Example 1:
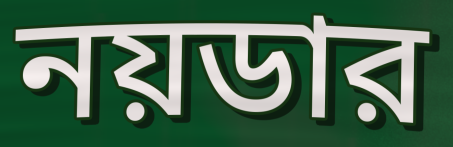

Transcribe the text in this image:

নয়ডার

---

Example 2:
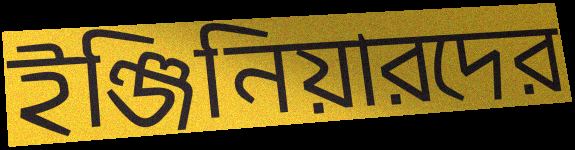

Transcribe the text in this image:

ইঞ্জিনিয়ারদের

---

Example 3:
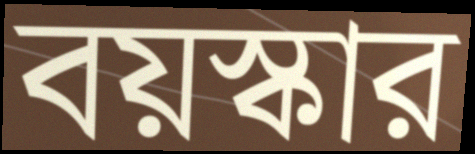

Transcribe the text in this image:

বয়স্কার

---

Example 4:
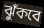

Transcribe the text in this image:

ঝুঁকবে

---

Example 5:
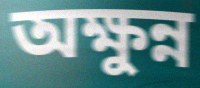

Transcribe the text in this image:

অক্ষুন্ন